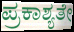
ಪ್ರಕಾಶ್ಯತೇ